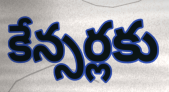
కేన్సర్లకు